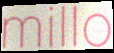
millo